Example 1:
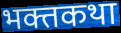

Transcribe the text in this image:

भक्तकथा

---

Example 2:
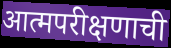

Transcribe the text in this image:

आत्मपरीक्षणाची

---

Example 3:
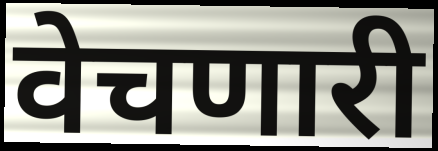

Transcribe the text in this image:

वेचणारी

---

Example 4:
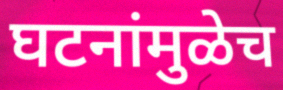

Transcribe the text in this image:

घटनांमुळेच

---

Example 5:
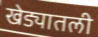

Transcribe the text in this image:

खेड्यातली